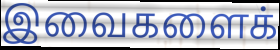
இவைகளைக்